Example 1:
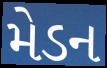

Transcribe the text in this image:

મેડન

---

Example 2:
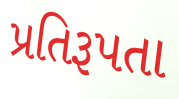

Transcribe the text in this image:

પ્રતિરૂપતા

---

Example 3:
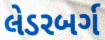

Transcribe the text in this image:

લેડરબર્ગ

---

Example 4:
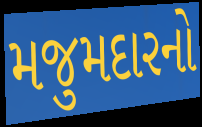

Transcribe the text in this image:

મજુમદારનો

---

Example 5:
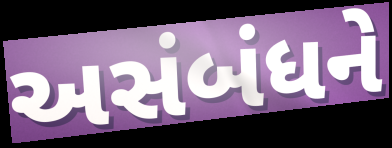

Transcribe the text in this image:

અસંબંધને